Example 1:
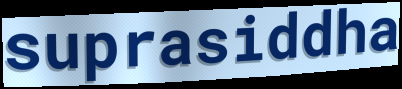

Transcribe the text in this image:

suprasiddha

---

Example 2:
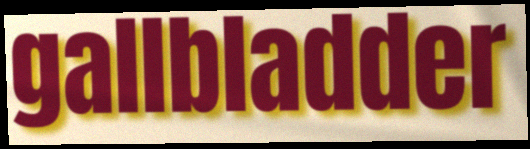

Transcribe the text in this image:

gallbladder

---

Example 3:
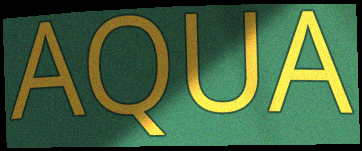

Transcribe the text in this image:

AQUA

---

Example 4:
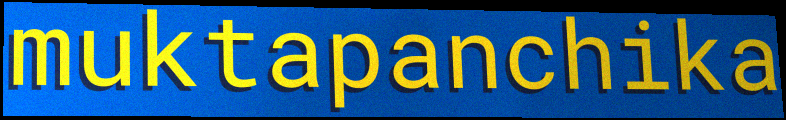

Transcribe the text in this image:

muktapanchika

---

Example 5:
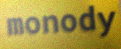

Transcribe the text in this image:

monody